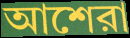
আশেরা